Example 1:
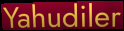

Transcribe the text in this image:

Yahudiler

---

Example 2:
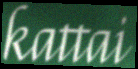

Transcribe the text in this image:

kattai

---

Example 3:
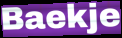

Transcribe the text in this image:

Baekje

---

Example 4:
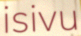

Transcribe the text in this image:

isivu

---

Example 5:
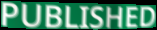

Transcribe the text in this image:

PUBLISHED